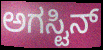
ಅಗಸ್ಟಿನ್